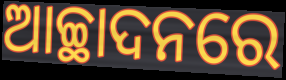
ଆଚ୍ଛାଦନରେ